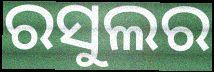
ରସୁଲର